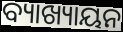
ବ୍ୟାଖ୍ୟାୟନ